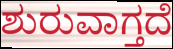
ಶುರುವಾಗ್ತದೆ